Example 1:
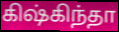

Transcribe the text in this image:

கிஷ்கிந்தா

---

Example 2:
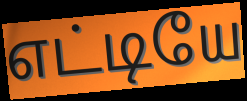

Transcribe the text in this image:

எட்டியே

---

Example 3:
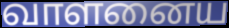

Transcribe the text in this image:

வாளனைய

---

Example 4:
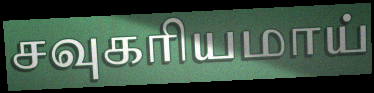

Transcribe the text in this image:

சவுகரியமாய்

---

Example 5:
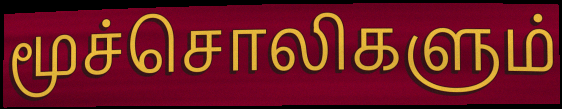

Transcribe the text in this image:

மூச்சொலிகளும்